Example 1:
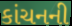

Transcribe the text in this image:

કાંચનની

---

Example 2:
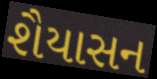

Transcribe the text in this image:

શૈયાસન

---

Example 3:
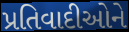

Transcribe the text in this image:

પ્રતિવાદીઓને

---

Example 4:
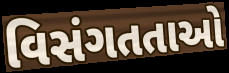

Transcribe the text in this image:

વિસંગતતાઓ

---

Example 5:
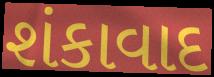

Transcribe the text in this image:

શંકાવાદ